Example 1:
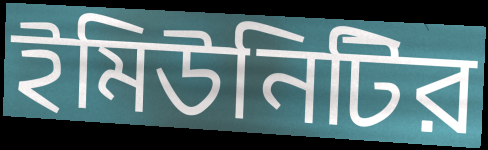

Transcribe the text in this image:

ইমিউনিটির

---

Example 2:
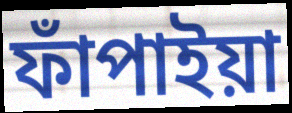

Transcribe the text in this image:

ফাঁপাইয়া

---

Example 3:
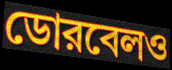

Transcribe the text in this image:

ডোরবেলও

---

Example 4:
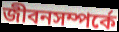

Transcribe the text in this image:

জীবনসম্পর্কে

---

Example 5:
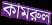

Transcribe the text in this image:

কামরুল